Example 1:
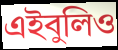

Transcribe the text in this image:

এইবুলিও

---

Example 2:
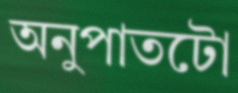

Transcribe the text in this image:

অনুপাতটো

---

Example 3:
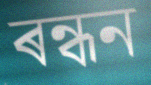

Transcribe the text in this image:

ৰন্ধন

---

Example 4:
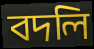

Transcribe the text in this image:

বদলি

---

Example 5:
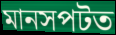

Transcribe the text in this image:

মানসপটত